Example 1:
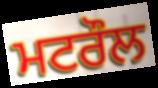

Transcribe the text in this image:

ਮਟਰੌਲ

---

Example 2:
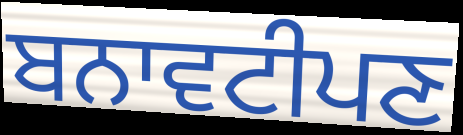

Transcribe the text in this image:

ਬਨਾਵਟੀਪਣ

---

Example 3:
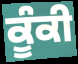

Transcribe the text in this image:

ਕੂੰਕੀ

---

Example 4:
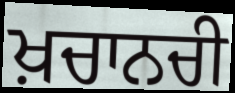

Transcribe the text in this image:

ਖ਼ਚਾਨਚੀ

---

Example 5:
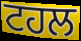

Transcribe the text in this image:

ਟਹਲ